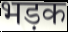
भड़क